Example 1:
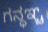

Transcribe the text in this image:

ಗನ್ಧಞ್ಚ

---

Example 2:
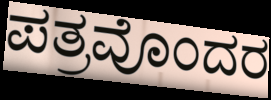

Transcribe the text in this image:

ಪತ್ರವೊಂದರ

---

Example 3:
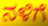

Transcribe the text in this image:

ನಳಿಗೆ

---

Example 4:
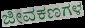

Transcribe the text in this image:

ಜೀವಕಣಗಳ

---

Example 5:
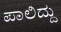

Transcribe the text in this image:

ಪಾಲಿದ್ದು